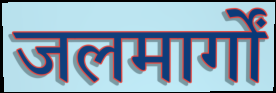
जलमार्गों